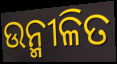
ଉନ୍ମୀଳିତ